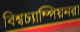
বিশ্বচ্যাম্পিয়নরা